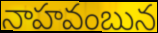
నాహవంబున